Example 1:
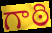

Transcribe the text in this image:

గాఠి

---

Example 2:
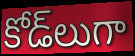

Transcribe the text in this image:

కోడ్‌లుగా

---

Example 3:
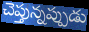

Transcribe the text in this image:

చెప్తున్నప్పుడు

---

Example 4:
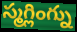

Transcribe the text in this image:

స్మగ్లింగ్ను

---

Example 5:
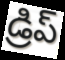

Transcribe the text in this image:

డ్రిప్